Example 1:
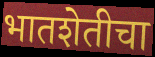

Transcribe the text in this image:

भातशेतीचा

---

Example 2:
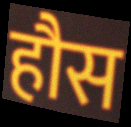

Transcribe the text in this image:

हौस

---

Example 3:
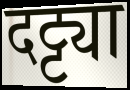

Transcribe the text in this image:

दट्ट्या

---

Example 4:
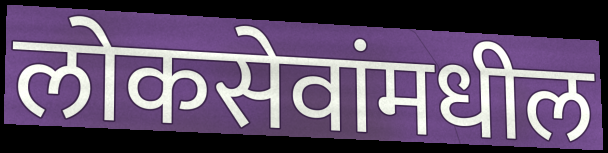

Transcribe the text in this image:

लोकसेवांमधील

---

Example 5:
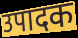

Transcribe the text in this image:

उपादक